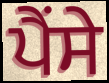
ਪੈਂਸੇ